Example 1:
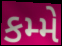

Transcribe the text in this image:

કમ્મે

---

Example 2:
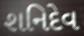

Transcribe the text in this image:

શનિદેવ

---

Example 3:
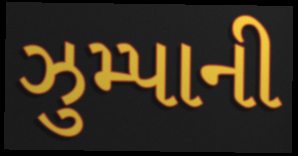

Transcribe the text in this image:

ઝુમ્પાની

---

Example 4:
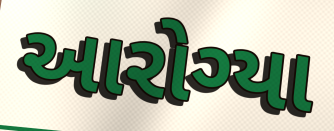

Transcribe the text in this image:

આરોગ્યા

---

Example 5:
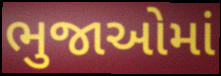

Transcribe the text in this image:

ભુજાઓમાં